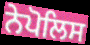
ਨੇਪੋਲਿਸ